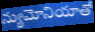
న్యుమోనియాతో